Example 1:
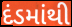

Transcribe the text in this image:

દંડમાંથી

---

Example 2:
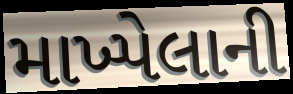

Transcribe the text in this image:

માખ્પેલાની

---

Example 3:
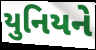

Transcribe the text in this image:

યુનિયને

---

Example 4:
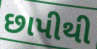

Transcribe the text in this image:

છાપીથી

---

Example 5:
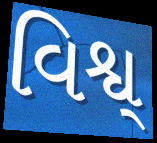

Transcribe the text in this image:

વિશ્વ્